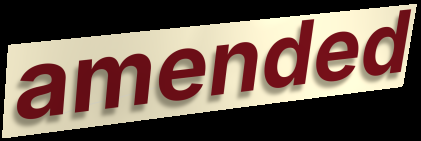
amended